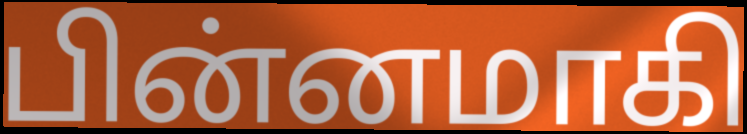
பின்னமாகி